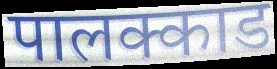
पालक्काड